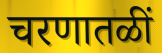
चरणातळीं